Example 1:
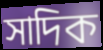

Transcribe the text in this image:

সাদিক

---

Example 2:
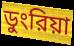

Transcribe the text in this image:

ডুংরিয়া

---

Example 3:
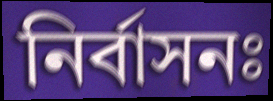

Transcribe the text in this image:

নির্বাসনঃ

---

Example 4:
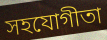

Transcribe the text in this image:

সহযোগীতা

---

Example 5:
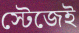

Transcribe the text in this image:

স্টেজেই